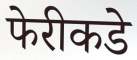
फेरीकडे